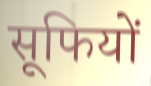
सूफियों